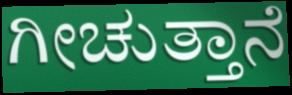
ಗೀಚುತ್ತಾನೆ